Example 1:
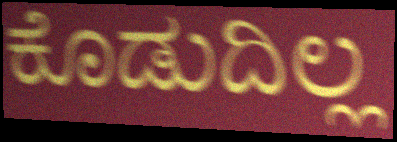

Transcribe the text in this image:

ಕೊಡುದಿಲ್ಲ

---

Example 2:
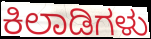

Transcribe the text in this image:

ಕಿಲಾಡಿಗಳು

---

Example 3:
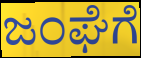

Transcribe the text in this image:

ಜಂಘೆಗೆ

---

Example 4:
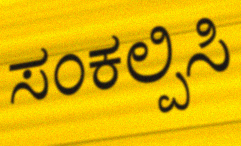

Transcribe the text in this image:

ಸಂಕಲ್ಪಿಸಿ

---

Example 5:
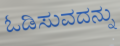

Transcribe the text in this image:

ಓಡಿಸುವದನ್ನು